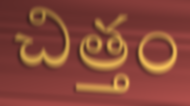
చిత్తం